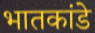
भातकांडे